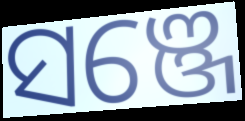
ସଞ୍ଜେ